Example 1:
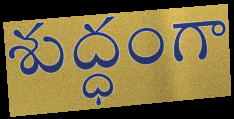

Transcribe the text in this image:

శుద్ధంగా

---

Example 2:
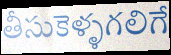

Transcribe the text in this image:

తీసుకెళ్ళగలిగే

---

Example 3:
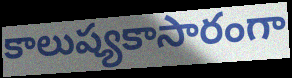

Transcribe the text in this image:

కాలుష్యకాసారంగా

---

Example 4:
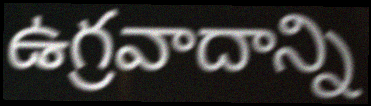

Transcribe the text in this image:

ఉగ్రవాదాన్ని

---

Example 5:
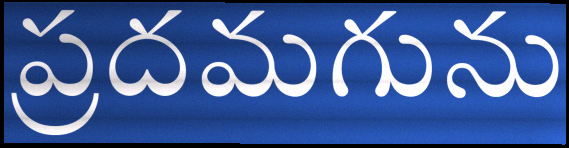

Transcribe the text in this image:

ప్రదమగును